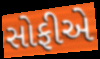
સોફીએ